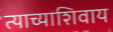
त्याच्याशिवाय